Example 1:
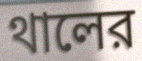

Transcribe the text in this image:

থালের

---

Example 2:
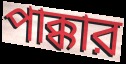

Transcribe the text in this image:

পাক্কার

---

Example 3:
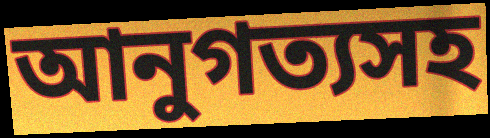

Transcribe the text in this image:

আনুগত্যসহ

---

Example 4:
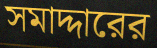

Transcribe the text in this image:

সমাদ্দারের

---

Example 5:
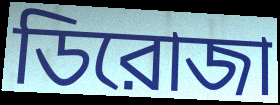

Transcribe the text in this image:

ডিরোজা